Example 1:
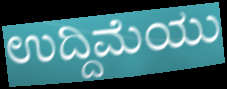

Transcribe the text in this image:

ಉದ್ದಿಮೆಯು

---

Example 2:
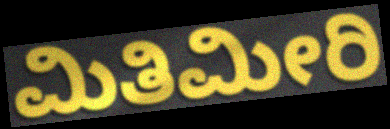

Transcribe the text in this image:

ಮಿತಿಮೀರಿ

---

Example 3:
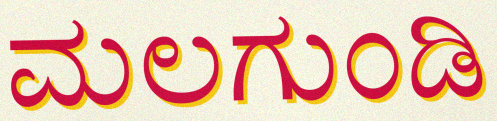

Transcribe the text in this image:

ಮಲಗುಂಡಿ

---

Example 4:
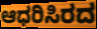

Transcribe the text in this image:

ಆಧರಿಸಿರದ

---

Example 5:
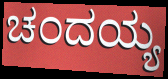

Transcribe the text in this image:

ಚಂದಯ್ಯ